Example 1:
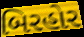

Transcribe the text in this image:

બિરહોર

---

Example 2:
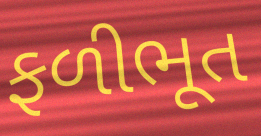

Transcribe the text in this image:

ફળીભૂત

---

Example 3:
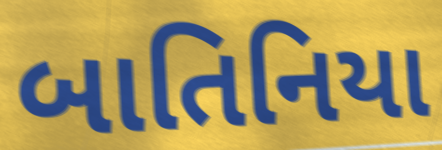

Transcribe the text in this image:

બાતિનિયા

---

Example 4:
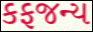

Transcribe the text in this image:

કફજન્ય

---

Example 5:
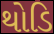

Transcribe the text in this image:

થોડિ